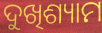
ଦୁଖିଶ୍ୟାମ